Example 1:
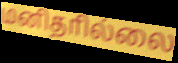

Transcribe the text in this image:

மனிதரில்லை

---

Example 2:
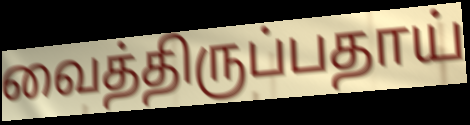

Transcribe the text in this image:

வைத்திருப்பதாய்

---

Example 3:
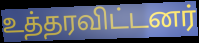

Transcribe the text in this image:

உத்தரவிட்டனர்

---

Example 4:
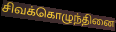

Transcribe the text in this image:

சிவக்கொழுந்தினை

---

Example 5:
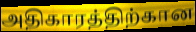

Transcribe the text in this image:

அதிகாரத்திற்கான